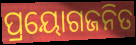
ପ୍ରୟୋଗଜନିତ